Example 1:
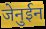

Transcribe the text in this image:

जेनुईन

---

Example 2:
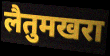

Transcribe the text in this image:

लैतुमखरा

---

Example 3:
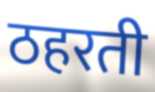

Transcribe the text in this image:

ठहरती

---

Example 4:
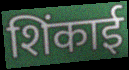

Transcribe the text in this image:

शिंकाई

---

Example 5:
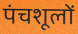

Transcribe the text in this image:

पंचशूलों